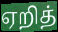
ஏறித்